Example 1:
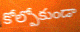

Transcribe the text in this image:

కోల్పోకుండా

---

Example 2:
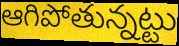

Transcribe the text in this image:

ఆగిపోతున్నట్టు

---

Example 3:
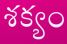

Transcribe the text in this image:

శక్యం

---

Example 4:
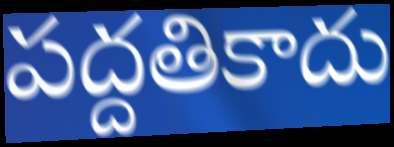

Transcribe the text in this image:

పద్దతికాదు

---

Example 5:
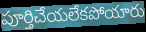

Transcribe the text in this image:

పూర్తిచేయలేకపోయారు